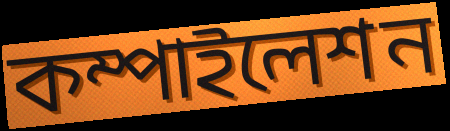
কম্পাইলেশন